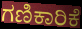
ಗಣಿಕಾರಿಕೆ